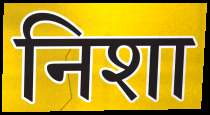
निशा